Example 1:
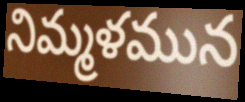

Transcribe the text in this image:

నిమ్మళమున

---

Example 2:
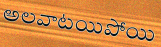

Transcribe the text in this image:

అలవాటయిపోయి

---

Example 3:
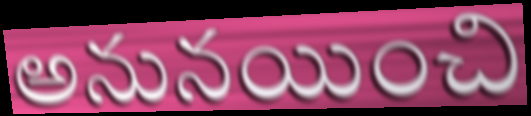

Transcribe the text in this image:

అనునయించి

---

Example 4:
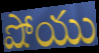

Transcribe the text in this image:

షోయు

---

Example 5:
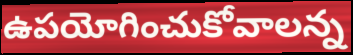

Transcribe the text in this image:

ఉపయోగించుకోవాలన్న